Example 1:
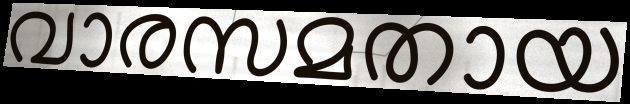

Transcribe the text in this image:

വാരസമതായ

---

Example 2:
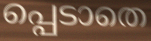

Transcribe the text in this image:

പ്പെടാതെ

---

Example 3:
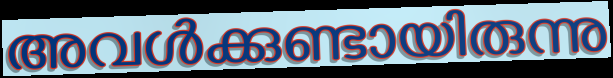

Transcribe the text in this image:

അവൾക്കുണ്ടായിരുന്നു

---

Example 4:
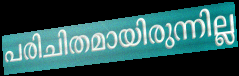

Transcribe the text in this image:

പരിചിതമായിരുന്നില്ല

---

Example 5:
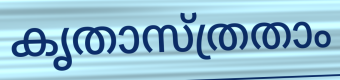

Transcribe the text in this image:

കൃതാസ്ത്രതാം